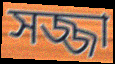
সজ্জা